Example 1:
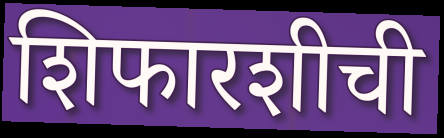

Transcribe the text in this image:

शिफारशीची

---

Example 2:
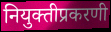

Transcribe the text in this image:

नियुक्तीप्रकरणी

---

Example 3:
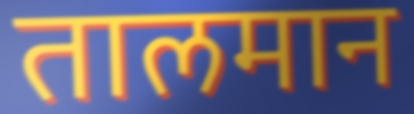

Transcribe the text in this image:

तालमान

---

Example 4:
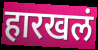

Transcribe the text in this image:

हारखलं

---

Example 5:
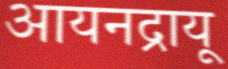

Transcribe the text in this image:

आयनद्रायू